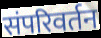
संपरिवर्तन